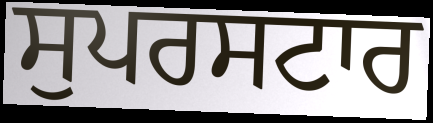
ਸੁਪਰਸਟਾਰ